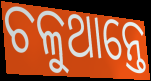
ଚଳୁଥାନ୍ତେ